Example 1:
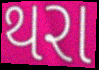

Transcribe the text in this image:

થરા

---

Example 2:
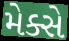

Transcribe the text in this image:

મેક્સે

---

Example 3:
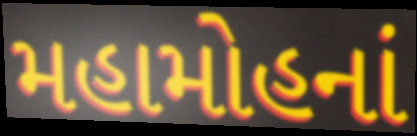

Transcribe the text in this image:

મહામોહનાં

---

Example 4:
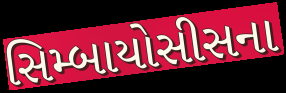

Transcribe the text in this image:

સિમ્બાયોસીસના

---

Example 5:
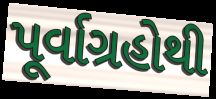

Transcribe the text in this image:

પૂર્વાગ્રહોથી